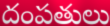
దంపతులు